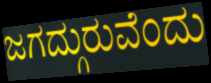
ಜಗದ್ಗುರುವೆಂದು